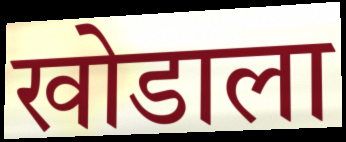
खोडाला